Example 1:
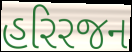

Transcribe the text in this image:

હરિરજન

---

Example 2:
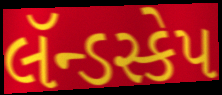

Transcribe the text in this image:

લૅન્ડસ્કેપ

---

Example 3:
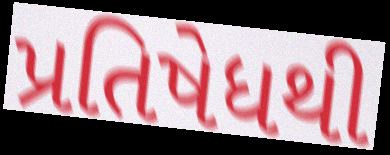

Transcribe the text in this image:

પ્રતિષેધથી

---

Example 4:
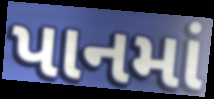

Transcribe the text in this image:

પાનમાં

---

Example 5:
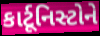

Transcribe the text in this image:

કાર્ટૂનિસ્ટોને